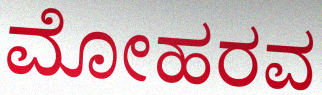
ಮೋಹರವ